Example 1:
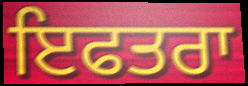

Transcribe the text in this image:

ਇਫਤਰਾ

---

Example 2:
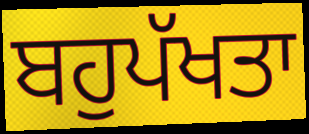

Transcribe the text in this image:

ਬਹੁਪੱਖਤਾ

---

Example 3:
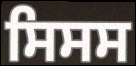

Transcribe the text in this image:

ਸਿਸਸ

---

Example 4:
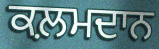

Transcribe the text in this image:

ਕ਼ਲਮਦਾਨ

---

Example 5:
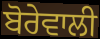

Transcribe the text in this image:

ਬੋਰੇਵਾਲੀ